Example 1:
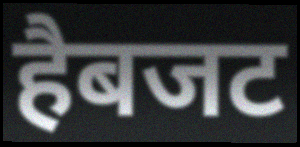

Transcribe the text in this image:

हैबजट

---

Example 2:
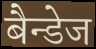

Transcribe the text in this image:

बैन्डेज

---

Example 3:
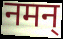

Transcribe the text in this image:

नमन्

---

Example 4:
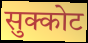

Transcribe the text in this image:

सुक्कोट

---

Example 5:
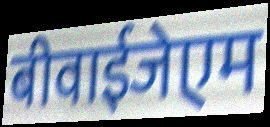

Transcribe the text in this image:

बीवाईजेएम